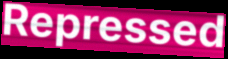
Repressed